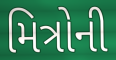
મિત્રોની